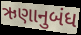
ઋણાનુબંધ